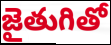
జైతుగితో